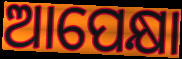
ଆପେକ୍ଷା